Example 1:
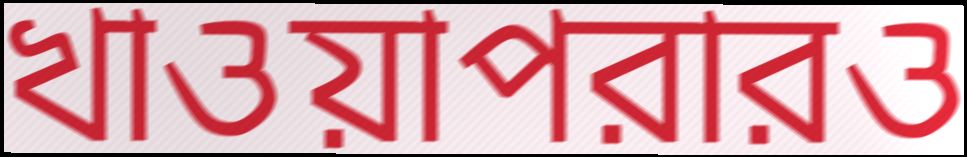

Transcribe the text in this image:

খাওয়াপরারও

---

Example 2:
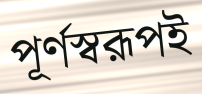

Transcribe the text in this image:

পূর্ণস্বরূপই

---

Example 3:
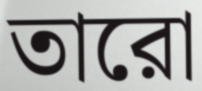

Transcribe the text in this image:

তারো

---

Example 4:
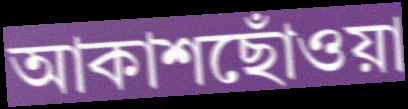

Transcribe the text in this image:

আকাশছোঁওয়া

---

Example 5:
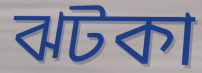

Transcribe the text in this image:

ঝটকা